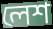
লেশ